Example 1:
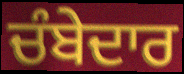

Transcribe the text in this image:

ਚੰਬੇਦਾਰ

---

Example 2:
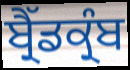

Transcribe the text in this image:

ਬ੍ਰੈੱਡਕ੍ਰੰਬ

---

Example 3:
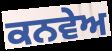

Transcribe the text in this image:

ਕਨਵੇਅ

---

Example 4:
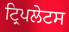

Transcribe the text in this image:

ਟ੍ਰਿਪਲੇਟਸ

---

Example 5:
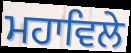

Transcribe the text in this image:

ਮਹਾਵਿਲੇ